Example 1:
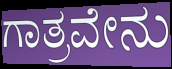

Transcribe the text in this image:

ಗಾತ್ರವೇನು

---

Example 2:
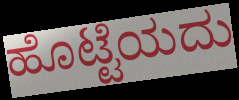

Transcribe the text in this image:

ಹೊಟ್ಟೆಯದು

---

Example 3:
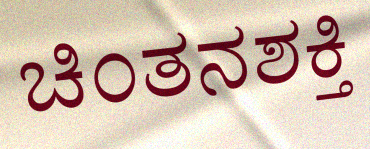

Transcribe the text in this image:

ಚಿಂತನಶಕ್ತಿ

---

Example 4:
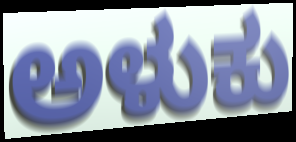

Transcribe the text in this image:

ಅಳುಕು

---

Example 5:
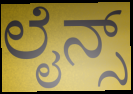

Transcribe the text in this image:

ಲೈನ್ಸ್